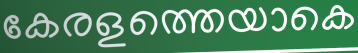
കേരളത്തെയാകെ